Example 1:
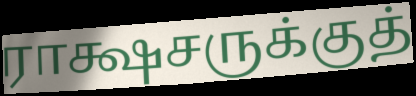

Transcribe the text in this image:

ராக்ஷசருக்குத்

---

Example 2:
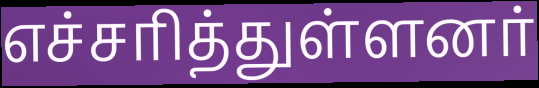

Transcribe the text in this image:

எச்சரித்துள்ளனர்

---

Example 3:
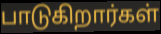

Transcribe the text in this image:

பாடுகிறார்கள்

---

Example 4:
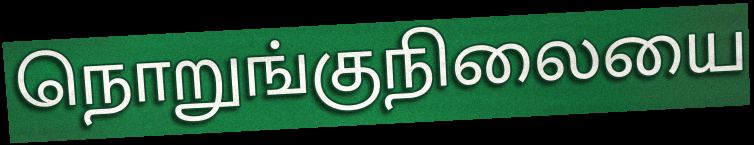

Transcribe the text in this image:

நொறுங்குநிலையை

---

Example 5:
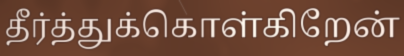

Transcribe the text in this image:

தீர்த்துக்கொள்கிறேன்